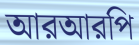
আরআরপি